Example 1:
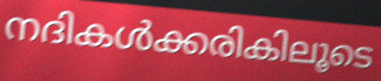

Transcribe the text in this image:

നദികൾക്കരികിലൂടെ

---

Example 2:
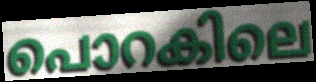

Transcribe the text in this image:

പൊറകിലെ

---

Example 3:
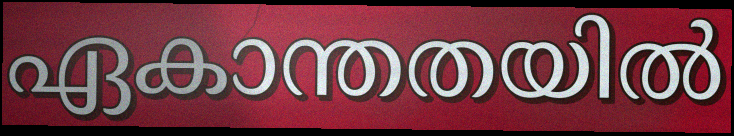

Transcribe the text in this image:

ഏകാന്തതയിൽ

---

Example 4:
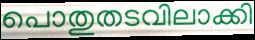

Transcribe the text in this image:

പൊതുതടവിലാക്കി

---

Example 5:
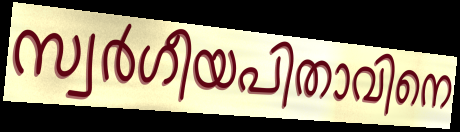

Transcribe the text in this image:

സ്വർഗീയപിതാവിനെ